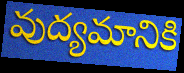
వుద్యమానికి